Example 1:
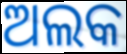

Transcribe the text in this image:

ଅଲକ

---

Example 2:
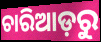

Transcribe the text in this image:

ଚାରିଆଡ଼ରୁ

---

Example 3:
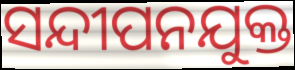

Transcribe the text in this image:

ସନ୍ଦୀପନଯୁକ୍ତ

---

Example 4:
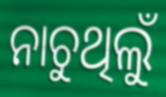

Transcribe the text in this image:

ନାଚୁଥିଲୁଁ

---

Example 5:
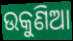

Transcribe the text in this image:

ଉକୁଣିଆ